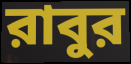
রাবুর